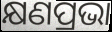
କ୍ଷଣପ୍ରଭା